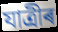
যাত্ৰীৰ